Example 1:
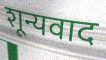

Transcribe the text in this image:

शून्यवाद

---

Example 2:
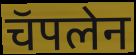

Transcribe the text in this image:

चॅपलेन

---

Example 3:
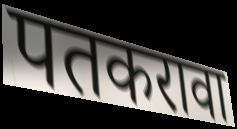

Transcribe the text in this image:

पतकरावा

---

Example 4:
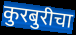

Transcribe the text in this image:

कुरबुरीचा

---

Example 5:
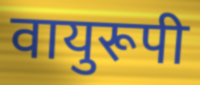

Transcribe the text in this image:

वायुरूपी